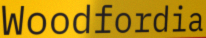
Woodfordia